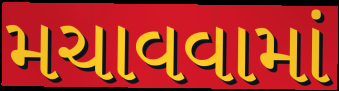
મચાવવામાં